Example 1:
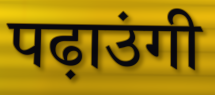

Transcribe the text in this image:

पढ़ाउंगी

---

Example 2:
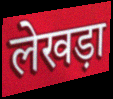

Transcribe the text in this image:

लेखड़ा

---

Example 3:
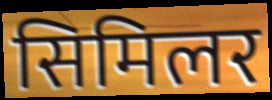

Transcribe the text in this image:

सिमिलर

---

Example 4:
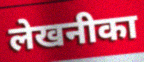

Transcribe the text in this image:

लेखनीका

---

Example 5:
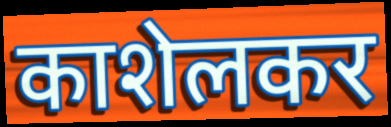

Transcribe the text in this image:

काशेलकर